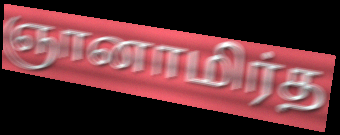
ஞானாமிர்த